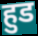
हुड